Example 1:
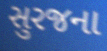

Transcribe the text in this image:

સુરજના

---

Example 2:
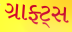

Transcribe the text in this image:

ગ્રાફ્ટ્સ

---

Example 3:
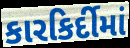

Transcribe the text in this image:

કારકિર્દીમાં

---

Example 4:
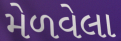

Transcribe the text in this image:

મેળવેલા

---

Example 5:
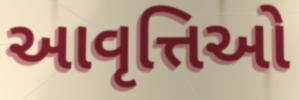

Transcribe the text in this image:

આવૃત્તિઓ